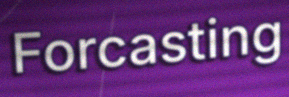
Forcasting